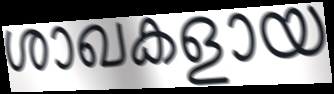
ശാഖകളായ